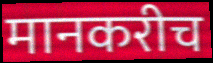
मानकरीच